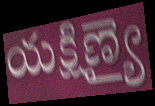
యక్షిణ్యై